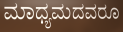
ಮಾಧ್ಯಮದವರೂ